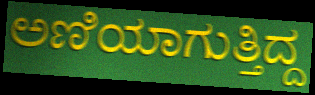
ಅಣಿಯಾಗುತ್ತಿದ್ದ